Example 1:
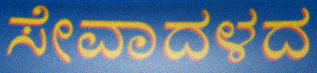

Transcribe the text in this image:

ಸೇವಾದಳದ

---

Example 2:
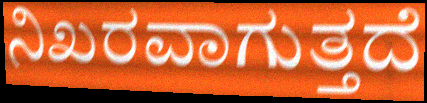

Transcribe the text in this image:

ನಿಖರವಾಗುತ್ತದೆ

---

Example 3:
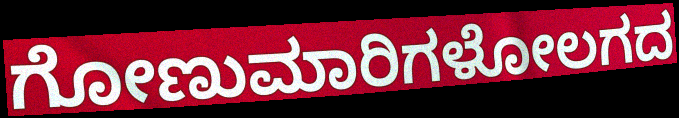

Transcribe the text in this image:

ಗೋಣುಮಾರಿಗಳೋಲಗದ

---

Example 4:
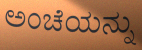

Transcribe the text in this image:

ಅಂಚೆಯನ್ನು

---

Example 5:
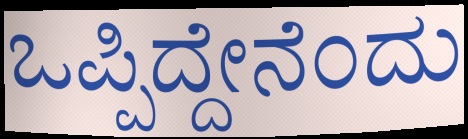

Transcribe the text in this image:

ಒಪ್ಪಿದ್ದೇನೆಂದು